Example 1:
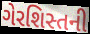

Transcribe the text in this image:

ગેરશિસ્તની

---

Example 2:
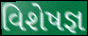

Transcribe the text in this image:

વિશેષજ્ઞ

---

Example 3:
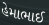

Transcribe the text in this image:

હેમાભાઈ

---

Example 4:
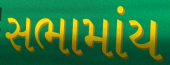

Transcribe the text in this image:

સભામાંય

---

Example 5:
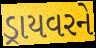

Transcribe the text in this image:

ડ્રાયવરને